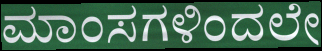
ಮಾಂಸಗಳಿಂದಲೇ